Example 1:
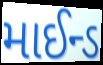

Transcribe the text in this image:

માઈન્ડ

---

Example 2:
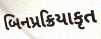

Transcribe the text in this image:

બિનપ્રક્રિયાકૃત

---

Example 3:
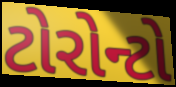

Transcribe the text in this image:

ટોરોન્ટો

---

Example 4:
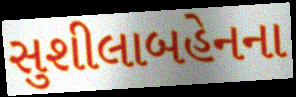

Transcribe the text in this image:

સુશીલાબહેનના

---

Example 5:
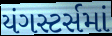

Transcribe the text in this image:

યંગસ્ટર્સમાં